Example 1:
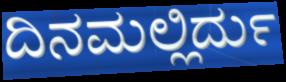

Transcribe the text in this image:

ದಿನಮಲ್ಲಿರ್ದು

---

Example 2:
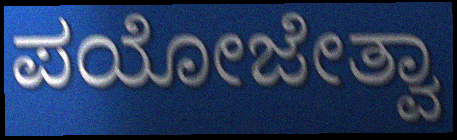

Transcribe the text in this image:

ಪಯೋಜೇತ್ವಾ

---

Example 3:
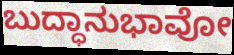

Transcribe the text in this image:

ಬುದ್ಧಾನುಭಾವೋ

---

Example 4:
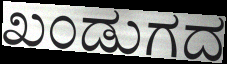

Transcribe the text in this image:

ಖಂಡುಗದ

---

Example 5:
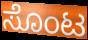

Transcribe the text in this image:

ಸೊಂಟ